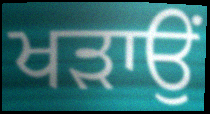
ਖੜਾਉਂ